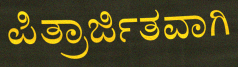
ಪಿತ್ರಾರ್ಜಿತವಾಗಿ